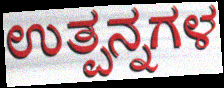
ಉತ್ಪನ್ನಗಳ